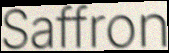
Saffron